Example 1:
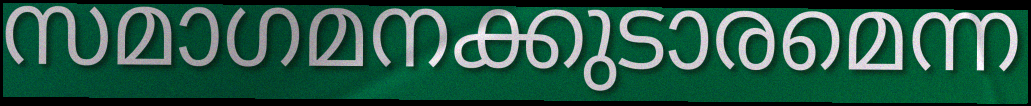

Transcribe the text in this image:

സമാഗമനക്കുടാരമെന്ന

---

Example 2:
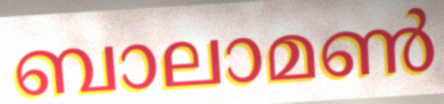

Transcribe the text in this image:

ബാലാമൺ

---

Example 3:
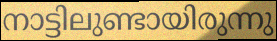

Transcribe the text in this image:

നാട്ടിലുണ്ടായിരുന്നു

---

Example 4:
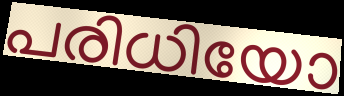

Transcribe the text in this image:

പരിധിയോ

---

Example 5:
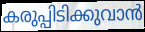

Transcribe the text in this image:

കരുപ്പിടിക്കുവാൻ